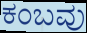
ಕಂಬವು